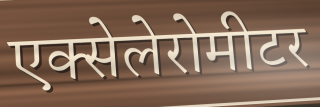
एक्सेलेरोमीटर